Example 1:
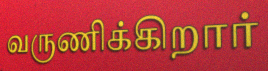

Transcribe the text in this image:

வருணிக்கிறார்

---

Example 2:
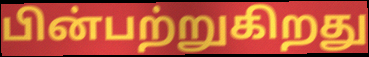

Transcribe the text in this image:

பின்பற்றுகிறது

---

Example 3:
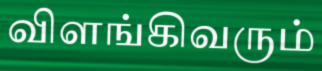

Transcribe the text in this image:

விளங்கிவரும்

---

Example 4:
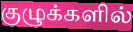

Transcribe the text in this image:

குழுக்களில்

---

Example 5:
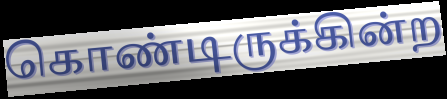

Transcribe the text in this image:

கொண்டிருக்கின்ற